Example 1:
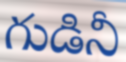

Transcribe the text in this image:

గుడినీ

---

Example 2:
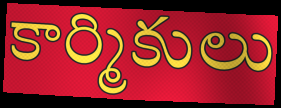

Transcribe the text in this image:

కార్మికులు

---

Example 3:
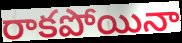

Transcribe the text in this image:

రాకపోయినా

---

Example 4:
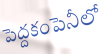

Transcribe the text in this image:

పెద్దకంపెనీలో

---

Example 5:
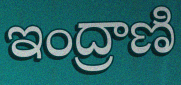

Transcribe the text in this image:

ఇంద్రాణి